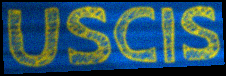
USCIS